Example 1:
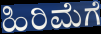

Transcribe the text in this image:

ಹಿರಿಮೆಗೆ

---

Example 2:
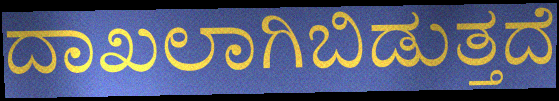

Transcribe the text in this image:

ದಾಖಲಾಗಿಬಿಡುತ್ತದೆ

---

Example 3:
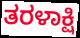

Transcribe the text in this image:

ತರಳಾಕ್ಷಿ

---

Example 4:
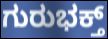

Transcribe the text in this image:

ಗುರುಭಕ್ತ್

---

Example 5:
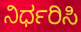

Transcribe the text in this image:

ನಿರ್ಧರಿಸಿ